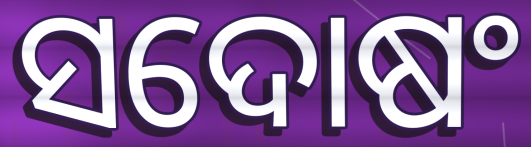
ସଦୋଷଂ